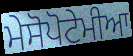
ਮੇਸੋਪੋਟੇਮੀਆ